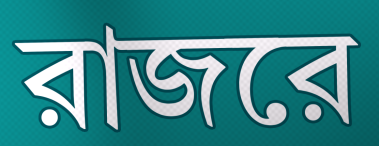
রাজরে